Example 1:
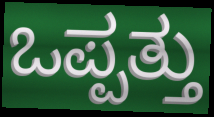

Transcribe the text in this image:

ಒಪ್ಪತ್ತು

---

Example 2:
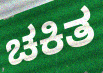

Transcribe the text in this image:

ಚಕಿತ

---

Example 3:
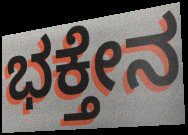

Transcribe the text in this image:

ಭಕ್ತೇನ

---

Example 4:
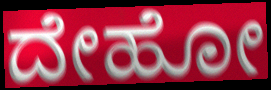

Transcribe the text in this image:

ದೇಹೋ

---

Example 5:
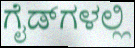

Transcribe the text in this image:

ಗೈಡ್‌ಗಳಲ್ಲಿ